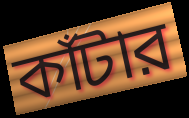
কাঁটার